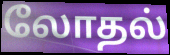
லோதல்